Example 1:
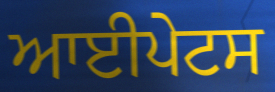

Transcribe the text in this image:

ਆਈਪੇਟਸ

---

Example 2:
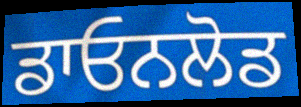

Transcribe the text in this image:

ਡਾਓਨਲੋਡ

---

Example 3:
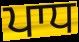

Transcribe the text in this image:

ਪਾਧ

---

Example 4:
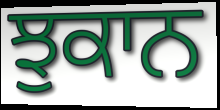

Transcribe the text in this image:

ਝੁਕਾਨ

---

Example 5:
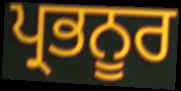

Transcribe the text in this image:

ਪ੍ਰਭਨੂਰ